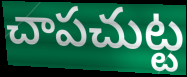
చాపచుట్ట